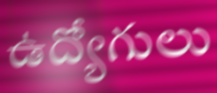
ఉద్యోగులు